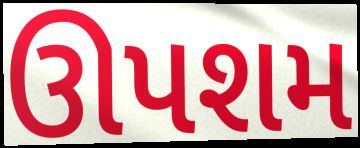
ઊપશમ